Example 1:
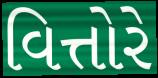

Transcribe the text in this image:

વિત્તોરે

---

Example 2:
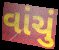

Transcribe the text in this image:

વાંચું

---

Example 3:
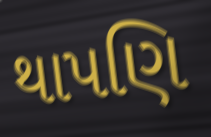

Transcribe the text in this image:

થાપણિ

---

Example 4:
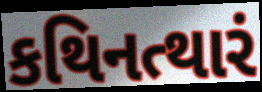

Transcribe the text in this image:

કથિનત્થારં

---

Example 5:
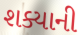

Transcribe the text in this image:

શક્યાની